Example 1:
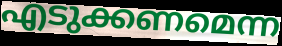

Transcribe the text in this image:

എടുക്കണമെന്ന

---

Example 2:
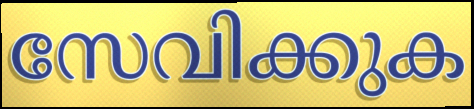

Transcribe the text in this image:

സേവിക്കുക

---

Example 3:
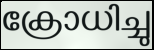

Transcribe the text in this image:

ക്രോധിച്ചു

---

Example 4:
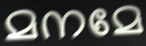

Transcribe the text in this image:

മനമേ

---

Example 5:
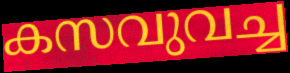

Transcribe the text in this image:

കസവുവച്ച